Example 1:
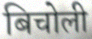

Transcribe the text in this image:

बिचोली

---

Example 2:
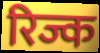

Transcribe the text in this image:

रिज्क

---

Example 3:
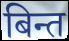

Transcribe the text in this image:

बिन्त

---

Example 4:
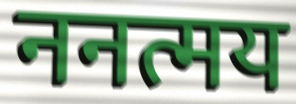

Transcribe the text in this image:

ननत्मय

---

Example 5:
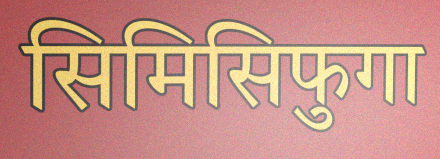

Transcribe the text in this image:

सिमिसिफुगा